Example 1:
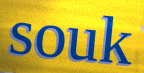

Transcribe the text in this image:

souk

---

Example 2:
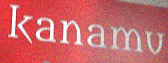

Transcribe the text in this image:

kanamu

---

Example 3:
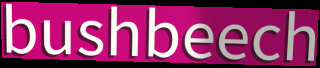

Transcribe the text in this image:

bushbeech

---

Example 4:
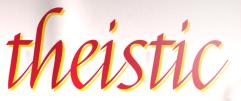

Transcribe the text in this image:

theistic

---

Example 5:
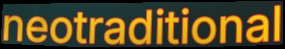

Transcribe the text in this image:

neotraditional